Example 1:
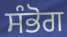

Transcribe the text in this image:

ਸੰਭੋਗ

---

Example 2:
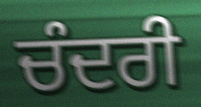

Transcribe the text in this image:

ਚੰਦਰੀ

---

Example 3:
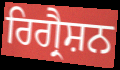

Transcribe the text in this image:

ਰਿਗ੍ਰੈਸ਼ਨ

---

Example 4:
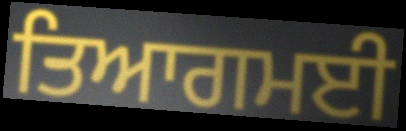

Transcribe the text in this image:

ਤਿਆਗਮਈ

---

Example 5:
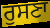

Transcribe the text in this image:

ਰੁਸਣਾ